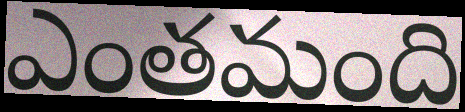
ఎంతమంది